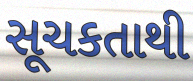
સૂચકતાથી